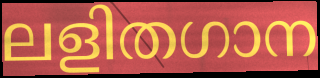
ലളിതഗാന